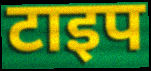
टाइप